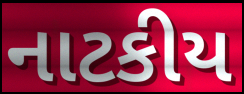
નાટકીય